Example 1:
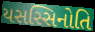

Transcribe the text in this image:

યસસ્સિનોતિ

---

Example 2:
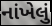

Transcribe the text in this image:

નાંખેલું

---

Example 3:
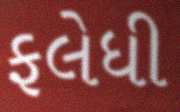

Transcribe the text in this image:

ફલેધી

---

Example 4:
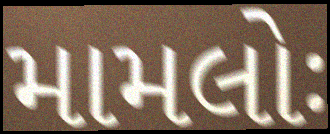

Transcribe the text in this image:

મામલોઃ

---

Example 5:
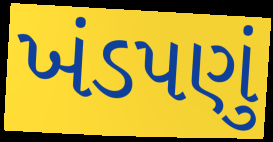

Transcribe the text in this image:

ખંડપણું